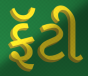
ફૅટી